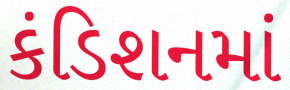
કંડિશનમાં